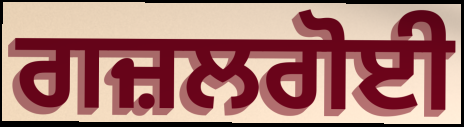
ਗਜ਼ਲਗੋਈ